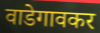
वाडेगावकर